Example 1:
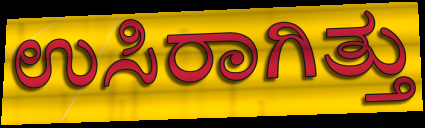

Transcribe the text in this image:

ಉಸಿರಾಗಿತ್ತು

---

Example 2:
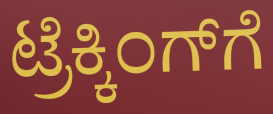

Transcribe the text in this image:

ಟ್ರೆಕ್ಕಿಂಗ್‌ಗೆ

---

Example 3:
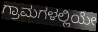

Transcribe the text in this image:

ಗ್ರಾಮಗಳಲ್ಲಿಯೇ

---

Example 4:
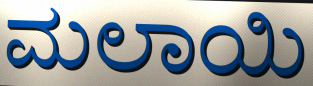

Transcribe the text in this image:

ಮಲಾಯಿ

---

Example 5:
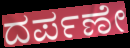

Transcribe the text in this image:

ದರ್ಪಣೇ